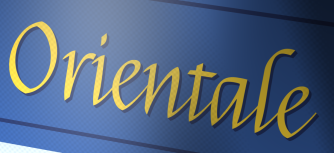
Orientale